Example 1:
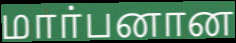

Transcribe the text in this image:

மார்பனான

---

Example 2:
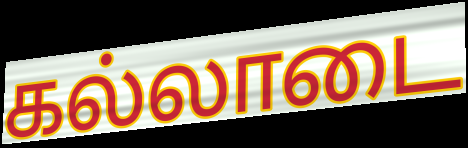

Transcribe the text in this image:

கல்லாடை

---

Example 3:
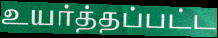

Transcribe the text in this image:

உயர்த்தப்பட்ட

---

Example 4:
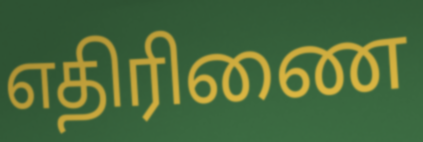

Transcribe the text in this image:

எதிரிணை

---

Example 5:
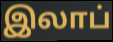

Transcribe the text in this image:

இலாப்